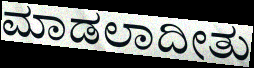
ಮಾಡಲಾದೀತು